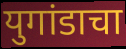
युगांडाचा